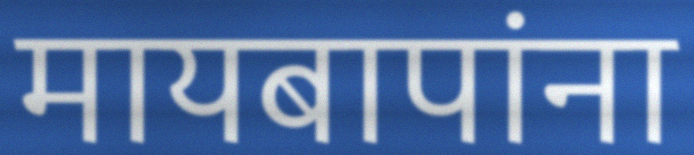
मायबापांना